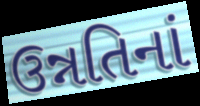
ઉન્નતિનાં